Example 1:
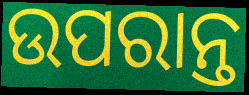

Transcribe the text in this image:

ଉପରାନ୍ତ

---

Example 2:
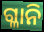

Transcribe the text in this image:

ଗ୍ଳାନି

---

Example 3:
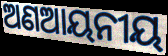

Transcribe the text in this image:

ଅଣଆୟନୀୟ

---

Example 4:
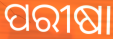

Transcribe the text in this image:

ପରୀଷା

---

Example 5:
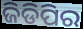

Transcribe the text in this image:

ଜିଡିପିର